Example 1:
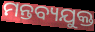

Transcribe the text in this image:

ମନ୍ତବ୍ୟଯୁକ୍ତ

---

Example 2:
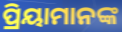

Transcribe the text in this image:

ପ୍ରିୟାମାନଙ୍କ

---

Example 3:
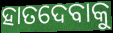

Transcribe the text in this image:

ହାତଦେବାକୁ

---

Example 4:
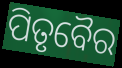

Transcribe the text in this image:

ପିତୃବୈର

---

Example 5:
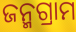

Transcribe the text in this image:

ଜନ୍ମଗ୍ରାମ